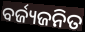
ବର୍ଜ୍ୟଜନିତ